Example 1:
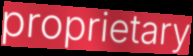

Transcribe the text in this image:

proprietary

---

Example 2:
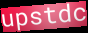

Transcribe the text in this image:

upstdc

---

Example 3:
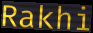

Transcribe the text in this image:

Rakhi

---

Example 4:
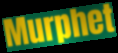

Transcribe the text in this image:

Murphet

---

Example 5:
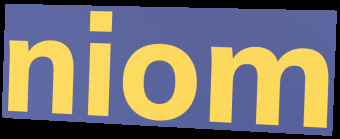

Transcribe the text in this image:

niom